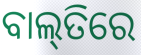
ବାଲ୍‌ତିରେ